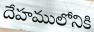
దేహములోనికి